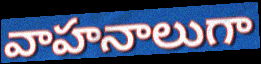
వాహనాలుగా